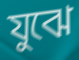
যুঝে